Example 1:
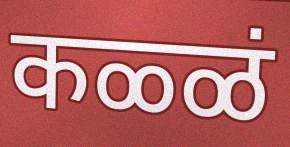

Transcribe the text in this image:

कळ्ळं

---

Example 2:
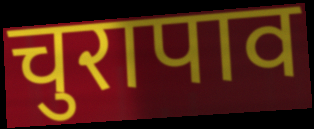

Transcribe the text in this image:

चुरापाव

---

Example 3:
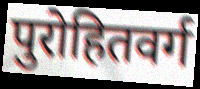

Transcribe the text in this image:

पुरोहितवर्ग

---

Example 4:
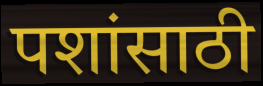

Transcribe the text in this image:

पशांसाठी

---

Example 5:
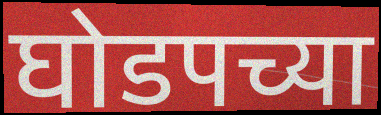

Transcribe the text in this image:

घोडपच्या